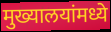
मुख्यालयांमध्ये